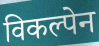
विकल्पेन